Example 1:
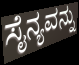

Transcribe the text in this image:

ಸೈನ್ಯವನ್ನು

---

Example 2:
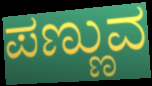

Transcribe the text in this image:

ಪಣ್ಣುವ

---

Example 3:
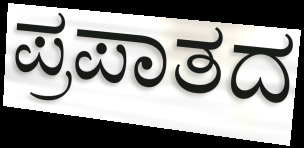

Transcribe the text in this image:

ಪ್ರಪಾತದ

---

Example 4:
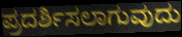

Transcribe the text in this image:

ಪ್ರದರ್ಶಿಸಲಾಗುವುದು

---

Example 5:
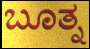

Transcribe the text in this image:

ಬೂತ್ನ